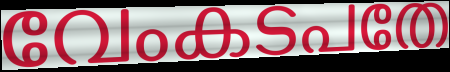
വേംകടപതേ